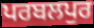
ਪਰਬਲਪੁਰ